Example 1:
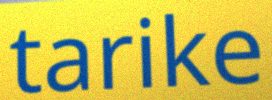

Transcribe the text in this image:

tarike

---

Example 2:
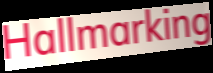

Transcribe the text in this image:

Hallmarking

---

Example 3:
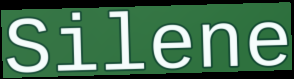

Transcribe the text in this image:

Silene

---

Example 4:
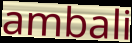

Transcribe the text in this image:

ambali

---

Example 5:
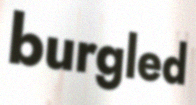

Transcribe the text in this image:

burgled